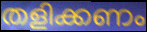
തളിക്കണം